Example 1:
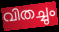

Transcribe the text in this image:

വിതച്ചും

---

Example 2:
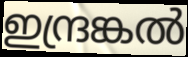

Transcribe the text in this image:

ഇന്ദ്രങ്കൽ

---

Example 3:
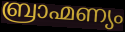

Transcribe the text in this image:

ബ്രാഹ്മണ്യം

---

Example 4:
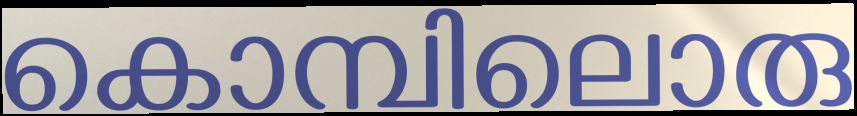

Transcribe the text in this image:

കൊമ്പിലൊരു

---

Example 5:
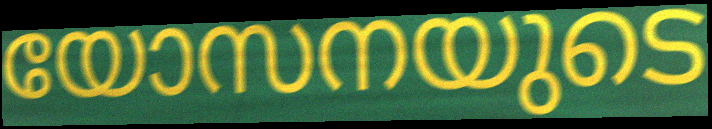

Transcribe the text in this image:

യോസനയുടെ